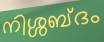
നിശ്ശബ്ദം